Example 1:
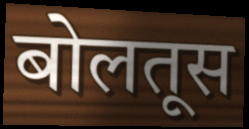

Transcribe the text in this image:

बोलतूस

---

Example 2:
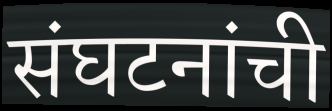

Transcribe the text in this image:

संघटनांची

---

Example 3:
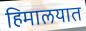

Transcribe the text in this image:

हिमालयात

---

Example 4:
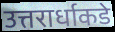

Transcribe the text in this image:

उत्तरार्धाकडे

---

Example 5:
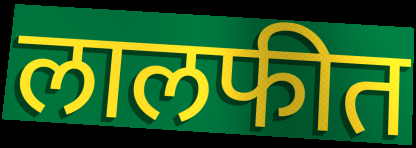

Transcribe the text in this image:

लालफीत